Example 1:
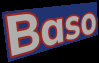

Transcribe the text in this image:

Baso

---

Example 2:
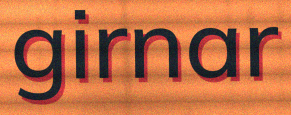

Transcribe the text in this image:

girnar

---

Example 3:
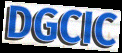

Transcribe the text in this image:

DGCIC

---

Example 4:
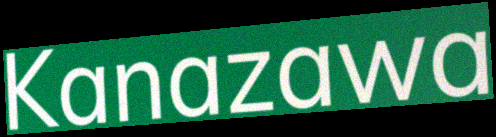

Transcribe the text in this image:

Kanazawa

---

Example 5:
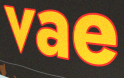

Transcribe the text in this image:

vae